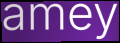
amey